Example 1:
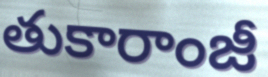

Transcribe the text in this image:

తుకారాంజీ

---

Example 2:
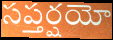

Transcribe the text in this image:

సప్తర్షయో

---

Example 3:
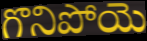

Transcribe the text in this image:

గొనిపోయె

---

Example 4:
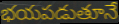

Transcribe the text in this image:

భయపడుతూనే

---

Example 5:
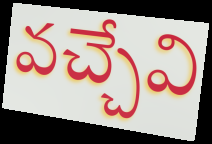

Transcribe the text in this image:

వచ్చేవి